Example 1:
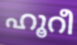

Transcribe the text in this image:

ഹൂറീ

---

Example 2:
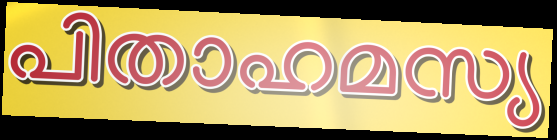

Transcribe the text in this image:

പിതാഹമസ്യ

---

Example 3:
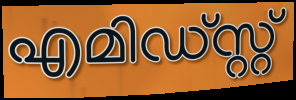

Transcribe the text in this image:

എമിഡ്സ്റ്റ്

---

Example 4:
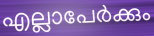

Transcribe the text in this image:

എല്ലാപേർക്കും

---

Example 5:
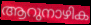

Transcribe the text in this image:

ആറുനാഴിക